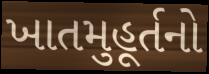
ખાતમુહૂર્તનો